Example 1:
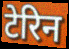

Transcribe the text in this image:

टेरिन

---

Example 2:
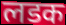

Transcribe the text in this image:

लडक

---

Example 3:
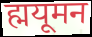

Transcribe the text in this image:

ह्मयूमन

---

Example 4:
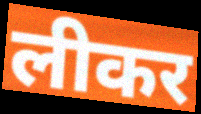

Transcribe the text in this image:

लीकर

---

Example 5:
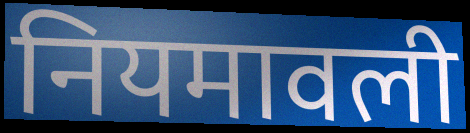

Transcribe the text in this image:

नियमावली